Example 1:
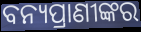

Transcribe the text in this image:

ବନ୍ୟପ୍ରାଣୀଙ୍କର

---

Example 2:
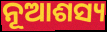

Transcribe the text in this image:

ନୂଆଶସ୍ୟ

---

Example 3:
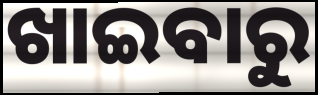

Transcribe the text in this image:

ଖାଇବାରୁ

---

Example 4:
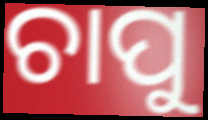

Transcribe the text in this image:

ଚାପୁ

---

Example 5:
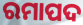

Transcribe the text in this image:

ରମାପଦ